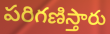
పరిగణిస్తారు